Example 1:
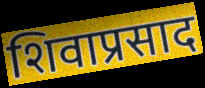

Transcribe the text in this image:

शिवाप्रसाद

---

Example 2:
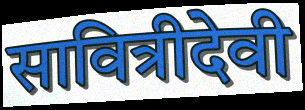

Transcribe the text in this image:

सावित्रीदेवी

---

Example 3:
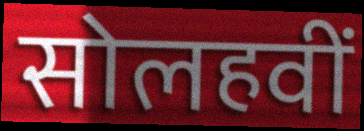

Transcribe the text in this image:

सोलहवीं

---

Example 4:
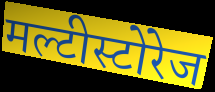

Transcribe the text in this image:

मल्टीस्टोरेज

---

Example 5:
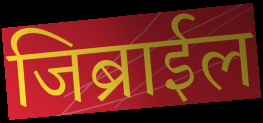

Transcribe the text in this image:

जिब्राईल